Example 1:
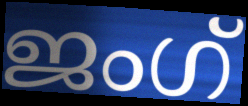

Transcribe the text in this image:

ജംഗ്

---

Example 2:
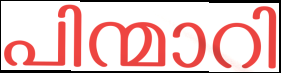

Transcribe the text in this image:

പിന്മാറി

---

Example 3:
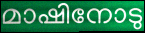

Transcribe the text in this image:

മാഷിനോടു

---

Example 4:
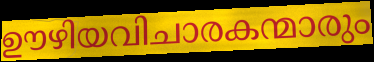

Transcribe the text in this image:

ഊഴിയവിചാരകന്മാരും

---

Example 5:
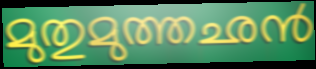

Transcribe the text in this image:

മുതുമുത്തഛൻ